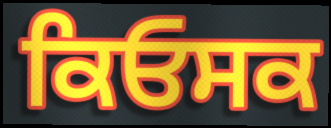
ਕਿਓਸਕ